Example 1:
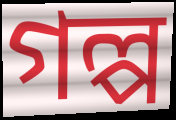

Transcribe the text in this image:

গল্প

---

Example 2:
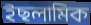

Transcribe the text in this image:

ইছলামিক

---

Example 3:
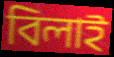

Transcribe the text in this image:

বিলাই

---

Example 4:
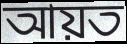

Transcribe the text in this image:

আয়ত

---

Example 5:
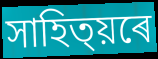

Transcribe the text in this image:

সাহিত্য়ৰে